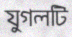
যুগলটি